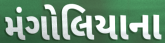
મંગોલિયાના